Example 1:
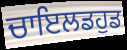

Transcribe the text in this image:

ਚਾਇਲਡਹੁਡ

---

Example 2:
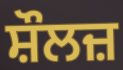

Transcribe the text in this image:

ਸ਼ੌਲਜ਼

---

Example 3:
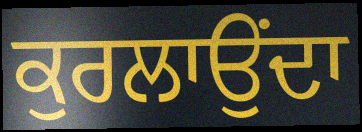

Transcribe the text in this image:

ਕੁਰਲਾਉਂਦਾ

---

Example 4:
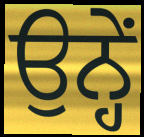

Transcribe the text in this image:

ਉਨ੍ਹੇਂ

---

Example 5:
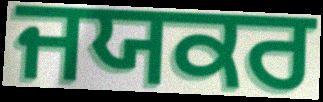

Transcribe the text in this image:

ਜਯਕਰ